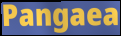
Pangaea